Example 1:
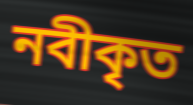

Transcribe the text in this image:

নবীকৃত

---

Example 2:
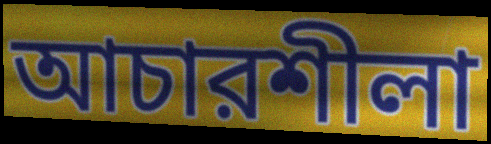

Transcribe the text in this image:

আচারশীলা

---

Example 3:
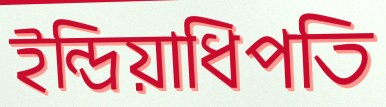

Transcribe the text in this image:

ইন্দ্রিয়াধিপতি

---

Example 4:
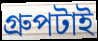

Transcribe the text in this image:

গ্রুপটাই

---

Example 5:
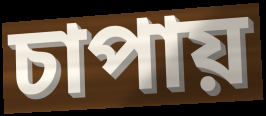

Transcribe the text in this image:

চাপায়